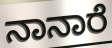
ನಾನಾರೆ